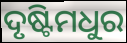
ଦୃଷ୍ଟିମଧୁର